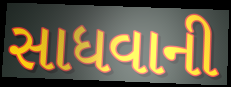
સાધવાની